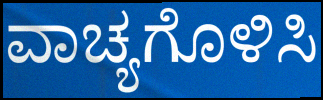
ವಾಚ್ಯಗೊಳಿಸಿ